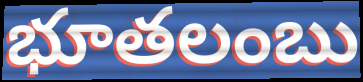
భూతలంబు